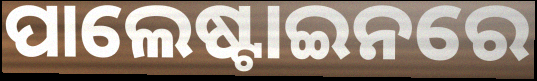
ପାଲେଷ୍ଟାଇନରେ